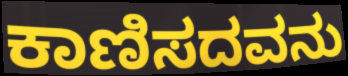
ಕಾಣಿಸದವನು